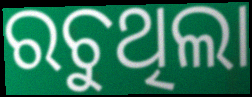
ରଚୁଥିଲା